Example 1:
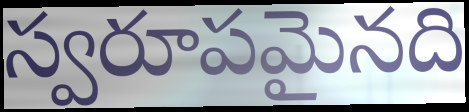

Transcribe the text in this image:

స్వరూపమైనది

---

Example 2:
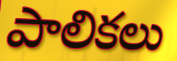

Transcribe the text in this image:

పాలికలు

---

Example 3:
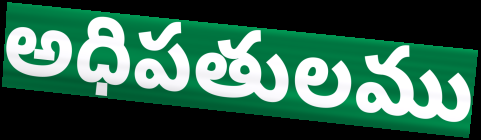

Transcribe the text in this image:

అధిపతులము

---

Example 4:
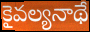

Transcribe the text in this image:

కైవల్యనాథే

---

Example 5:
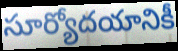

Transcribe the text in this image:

సూర్యోదయానికీ